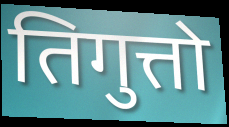
तिगुत्तो